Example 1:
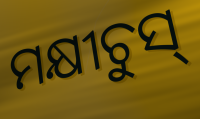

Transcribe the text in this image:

ମକ୍ଷୀଚୁସ୍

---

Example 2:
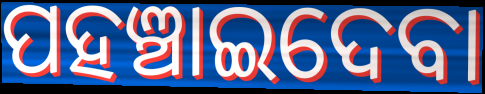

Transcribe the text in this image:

ପହଞ୍ଚାଇଦେବା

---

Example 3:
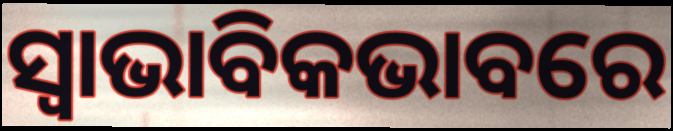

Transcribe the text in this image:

ସ୍ୱାଭାବିକଭାବରେ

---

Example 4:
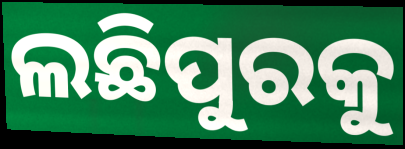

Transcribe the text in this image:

ଲଛିପୁରକୁ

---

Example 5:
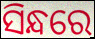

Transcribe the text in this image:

ସିନ୍ଧରେ